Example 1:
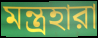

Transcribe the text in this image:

মন্ত্রহারা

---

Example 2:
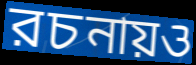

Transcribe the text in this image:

রচনায়ও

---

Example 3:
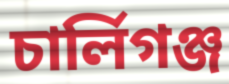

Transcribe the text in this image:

চার্লিগঞ্জ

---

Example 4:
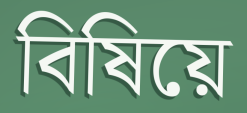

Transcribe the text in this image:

বিষিয়ে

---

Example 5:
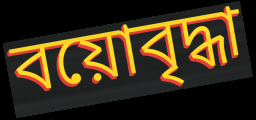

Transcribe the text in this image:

বয়োবৃদ্ধা